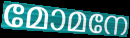
മോമനേ